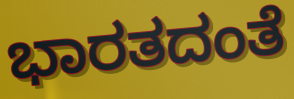
ಭಾರತದಂತೆ